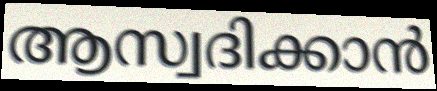
ആസ്വദിക്കാൻ